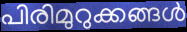
പിരിമുറുക്കങ്ങൾ